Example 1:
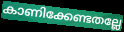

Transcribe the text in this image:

കാണിക്കേണ്ടതല്ലേ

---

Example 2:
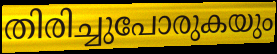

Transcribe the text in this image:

തിരിച്ചുപോരുകയും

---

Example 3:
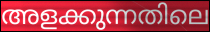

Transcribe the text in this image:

അളക്കുന്നതിലെ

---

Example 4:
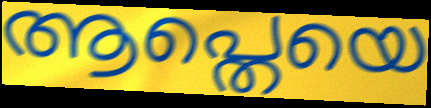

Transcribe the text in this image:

ആപ്തെയെ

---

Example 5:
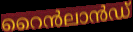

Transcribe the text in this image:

റൈൻലാൻഡ്